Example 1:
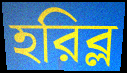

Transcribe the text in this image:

হরিব্ল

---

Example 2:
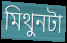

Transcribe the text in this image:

মিথুনটা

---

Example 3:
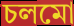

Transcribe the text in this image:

চলমো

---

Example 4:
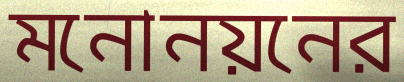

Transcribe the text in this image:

মনোনয়নের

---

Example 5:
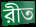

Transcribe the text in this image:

রীত